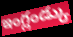
ఇంగ్లండ్కు